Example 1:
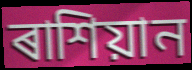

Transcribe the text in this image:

ৰাশিয়ান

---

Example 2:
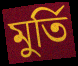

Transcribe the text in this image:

মুৰ্তি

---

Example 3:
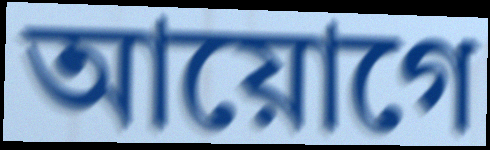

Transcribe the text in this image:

আয়োগে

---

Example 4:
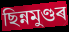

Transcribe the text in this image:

ছিন্নমুণ্ডৰ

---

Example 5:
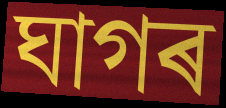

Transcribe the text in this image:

ঘাগৰ